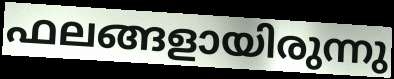
ഫലങ്ങളായിരുന്നു